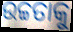
ଉଚ୍ଚତାକୁ